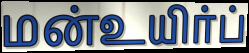
மன்உயிர்ப்